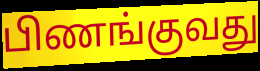
பிணங்குவது